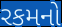
રકમનો